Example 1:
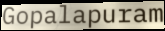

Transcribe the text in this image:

Gopalapuram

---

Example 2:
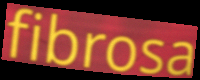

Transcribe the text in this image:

fibrosa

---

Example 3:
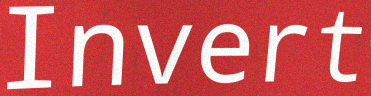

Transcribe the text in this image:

Invert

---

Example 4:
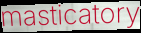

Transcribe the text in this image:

masticatory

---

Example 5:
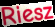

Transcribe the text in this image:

Riesz